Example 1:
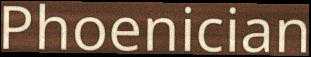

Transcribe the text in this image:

Phoenician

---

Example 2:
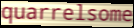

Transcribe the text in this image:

quarrelsome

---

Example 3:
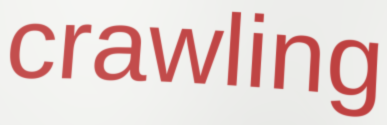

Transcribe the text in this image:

crawling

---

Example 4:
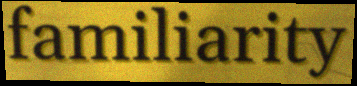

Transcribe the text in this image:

familiarity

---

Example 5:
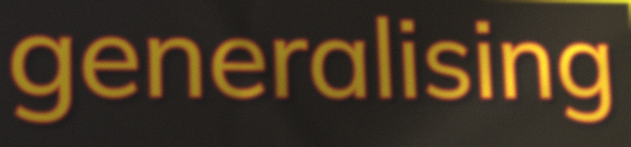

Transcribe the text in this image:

generalising